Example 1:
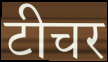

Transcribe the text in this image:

टीचर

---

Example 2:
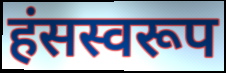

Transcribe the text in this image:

हंसस्वरूप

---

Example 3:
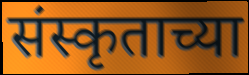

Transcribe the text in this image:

संस्कृताच्या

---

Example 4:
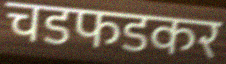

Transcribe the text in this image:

चडफडकर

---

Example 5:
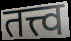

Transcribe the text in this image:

तत्त्व